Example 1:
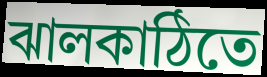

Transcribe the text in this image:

ঝালকাঠিতে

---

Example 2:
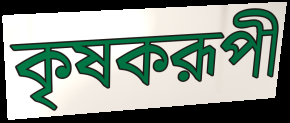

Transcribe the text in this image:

কৃষকরূপী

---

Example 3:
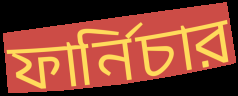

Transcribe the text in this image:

ফার্নিচার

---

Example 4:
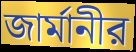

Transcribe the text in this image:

জার্মানীর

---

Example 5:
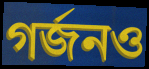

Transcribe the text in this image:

গর্জনও